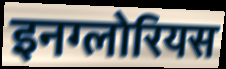
इनग्लोरियस